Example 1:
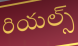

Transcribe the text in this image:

రియల్స్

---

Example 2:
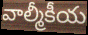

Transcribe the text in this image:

వాల్మీకీయ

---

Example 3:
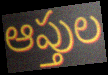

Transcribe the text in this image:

ఆప్తుల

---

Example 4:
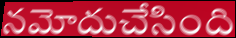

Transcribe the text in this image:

నమోదుచేసింది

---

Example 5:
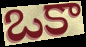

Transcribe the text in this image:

ఒకా